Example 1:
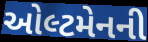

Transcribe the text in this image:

ઓલ્ટમેનની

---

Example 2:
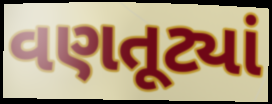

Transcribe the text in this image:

વણતૂટ્યાં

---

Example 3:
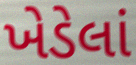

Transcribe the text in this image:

ખેડેલાં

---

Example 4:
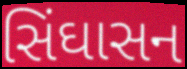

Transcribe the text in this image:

સિંઘાસન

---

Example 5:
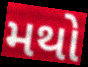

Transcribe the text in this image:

મથો